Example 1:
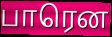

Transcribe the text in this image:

பாரென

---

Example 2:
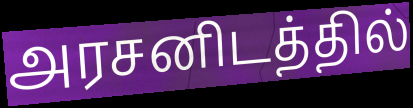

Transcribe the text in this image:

அரசனிடத்தில்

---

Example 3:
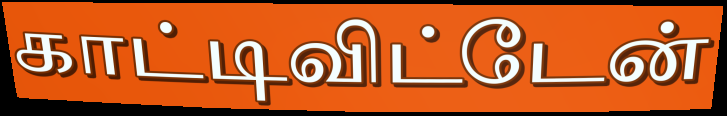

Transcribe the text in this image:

காட்டிவிட்டேன்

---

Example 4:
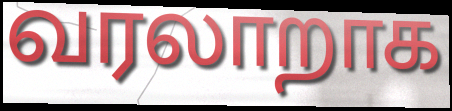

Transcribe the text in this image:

வரலாறாக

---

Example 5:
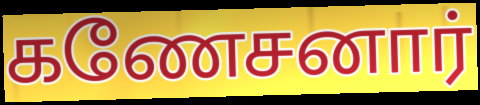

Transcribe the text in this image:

கணேசனார்